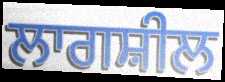
ਲਾਗਸ਼ੀਲ